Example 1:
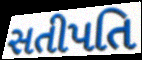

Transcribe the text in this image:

સતીપતિ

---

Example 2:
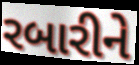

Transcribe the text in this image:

રબારીને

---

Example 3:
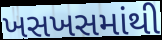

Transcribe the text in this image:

ખસખસમાંથી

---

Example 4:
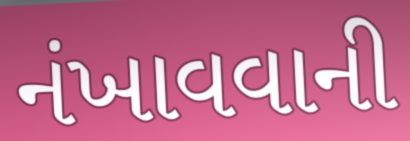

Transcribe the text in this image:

નંખાવવાની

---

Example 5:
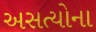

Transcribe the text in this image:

અસત્યોના